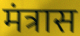
मंत्रास